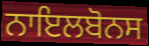
ਨਾਇਲਬੋਨਸ